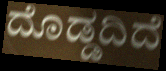
ದೊಡ್ಡದಿದೆ